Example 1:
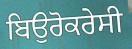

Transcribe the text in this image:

ਬਿਉਰੋਕਰੇਸੀ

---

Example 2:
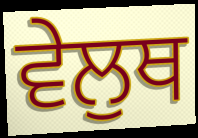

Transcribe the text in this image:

ਵੇਲੁਥ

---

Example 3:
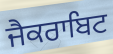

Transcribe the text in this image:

ਜੈਕਰਾਬਿਟ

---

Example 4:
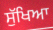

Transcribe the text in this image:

ਸੁੱਖਿਆ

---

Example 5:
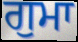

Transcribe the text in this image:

ਗੁਮਾ